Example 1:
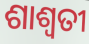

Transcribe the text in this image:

ଶାଶ୍ଵତୀ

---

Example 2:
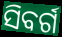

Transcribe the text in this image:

ସିବର୍ଗ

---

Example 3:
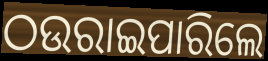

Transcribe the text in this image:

ଠଉରାଇପାରିଲେ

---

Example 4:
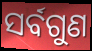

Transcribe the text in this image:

ସର୍ବଗୁଣ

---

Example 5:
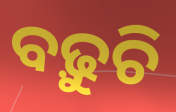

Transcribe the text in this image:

ବଢ଼ୁଚି